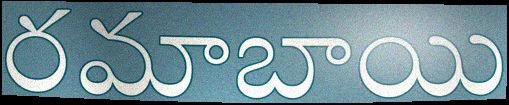
రమాబాయి